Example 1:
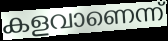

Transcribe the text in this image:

കളവാണെന്ന്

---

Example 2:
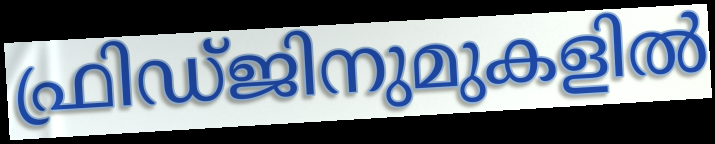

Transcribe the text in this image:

ഫ്രിഡ്ജിനുമുകളിൽ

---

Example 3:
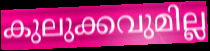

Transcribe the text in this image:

കുലുക്കവുമില്ല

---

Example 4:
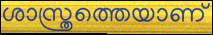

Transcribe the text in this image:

ശാസ്ത്രത്തെയാണ്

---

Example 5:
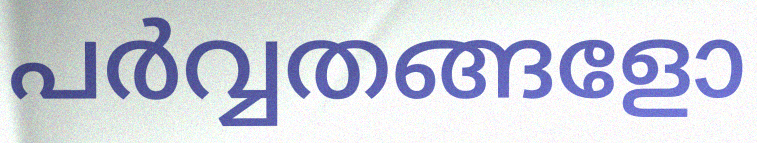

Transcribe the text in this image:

പർവ്വതങ്ങളോ